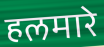
हलमारे